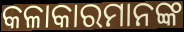
କଳାକାରମାନଙ୍କ